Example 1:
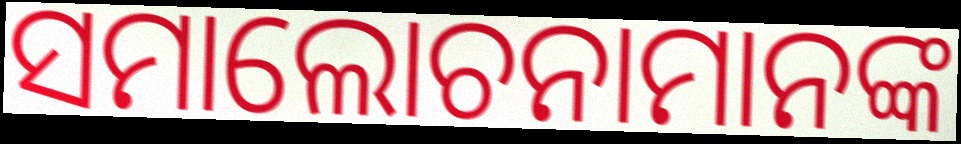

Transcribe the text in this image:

ସମାଲୋଚନାମାନଙ୍କ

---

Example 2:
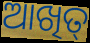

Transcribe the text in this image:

ଆଖିତ୍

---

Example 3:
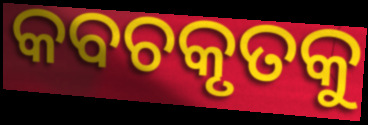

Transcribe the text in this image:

କବଚକୃତକୁ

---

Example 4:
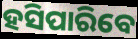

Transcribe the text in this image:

ହସିପାରିବେ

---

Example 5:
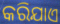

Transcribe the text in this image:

କରିଯାଏ